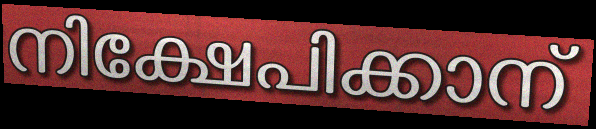
നിക്ഷേപിക്കാന്